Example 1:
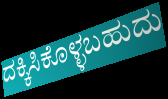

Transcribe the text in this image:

ದಕ್ಕಿಸಿಕೊಳ್ಳಬಹುದು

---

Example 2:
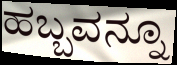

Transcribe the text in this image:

ಹಬ್ಬವನ್ನೂ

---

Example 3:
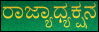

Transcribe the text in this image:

ರಾಜ್ಯಾಧ್ಯಕ್ಷನ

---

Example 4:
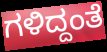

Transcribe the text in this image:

ಗಳಿದ್ದಂತೆ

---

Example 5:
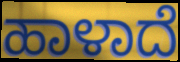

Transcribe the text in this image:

ಹಾಳಾದೆ